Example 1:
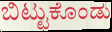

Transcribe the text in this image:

ಬಿಟ್ಟುಕೊಂಡು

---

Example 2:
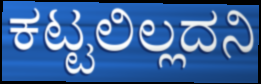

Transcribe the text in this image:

ಕಟ್ಟಲಿಲ್ಲದನಿ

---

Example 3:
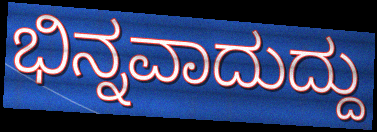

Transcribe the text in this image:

ಭಿನ್ನವಾದುದ್ದು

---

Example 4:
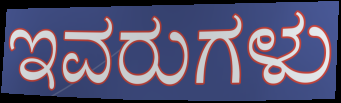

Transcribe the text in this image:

ಇವರುಗಳು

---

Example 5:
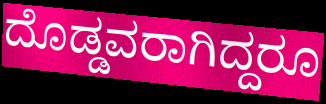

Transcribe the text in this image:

ದೊಡ್ಡವರಾಗಿದ್ದರೂ